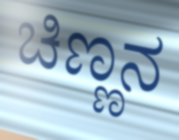
ಚಿಣ್ಣನ